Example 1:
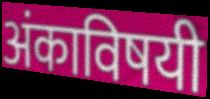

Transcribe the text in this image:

अंकाविषयी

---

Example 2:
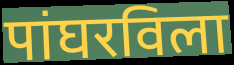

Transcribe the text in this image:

पांघरविला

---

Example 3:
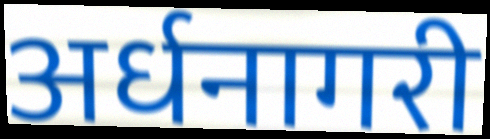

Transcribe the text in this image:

अर्धनागरी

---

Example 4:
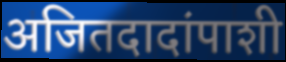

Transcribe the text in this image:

अजितदादांपाशी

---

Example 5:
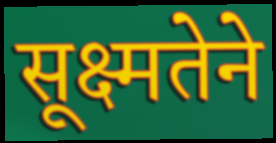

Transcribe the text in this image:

सूक्ष्मतेने